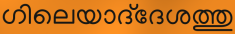
ഗിലെയാദ്‌ദേശത്തു